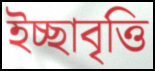
ইচ্ছাবৃত্তি